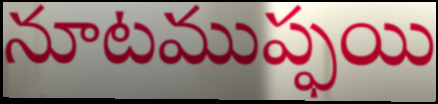
నూటముప్ఫయి